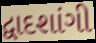
દ્વાદશાંગી